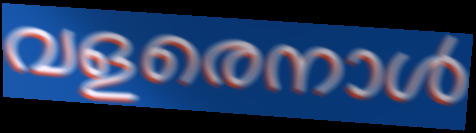
വളരെനാൾ